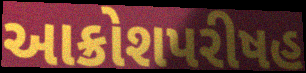
આક્રોશપરીષહ